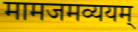
मामजमव्ययम्